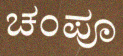
ಚಂಪೂ